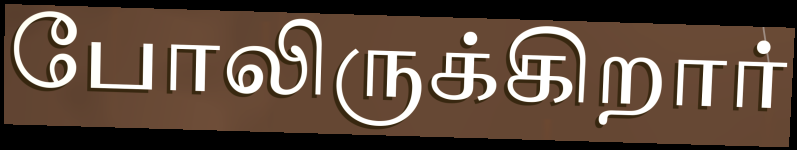
போலிருக்கிறார்